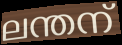
ലന്തന്